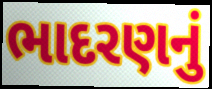
ભાદરણનું